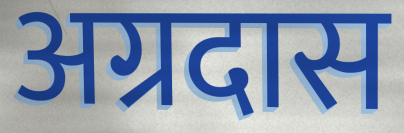
अग्रदास